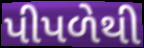
પીપળેથી